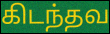
கிடந்தவ